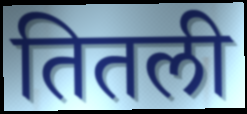
तितली